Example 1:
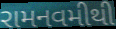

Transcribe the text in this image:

રામનવમીથી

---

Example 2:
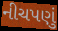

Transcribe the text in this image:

નીચપણું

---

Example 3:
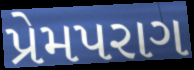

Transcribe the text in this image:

પ્રેમપરાગ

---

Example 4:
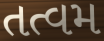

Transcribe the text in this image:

તત્વમ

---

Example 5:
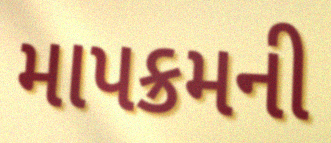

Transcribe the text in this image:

માપક્રમની